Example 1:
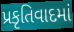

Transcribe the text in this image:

પ્રકૃતિવાદમાં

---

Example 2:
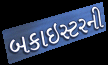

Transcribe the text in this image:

બકાઇસ્ટરની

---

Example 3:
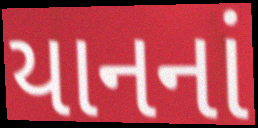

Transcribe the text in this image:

યાનનાં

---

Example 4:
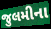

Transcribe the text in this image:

જુલમીના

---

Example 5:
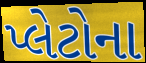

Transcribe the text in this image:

પ્લેટોના